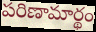
పరిణామార్థం